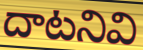
దాటనివి